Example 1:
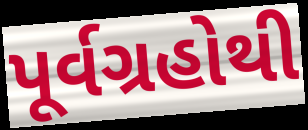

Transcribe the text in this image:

પૂર્વગ્રહોથી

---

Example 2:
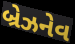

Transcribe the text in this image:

બ્રેઝનેવ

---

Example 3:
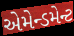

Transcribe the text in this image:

એમેન્ડમેન્ટ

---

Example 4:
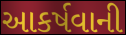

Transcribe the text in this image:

આકર્ષવાની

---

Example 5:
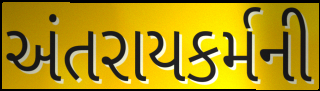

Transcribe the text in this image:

અંતરાયકર્મની